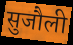
सुजौली